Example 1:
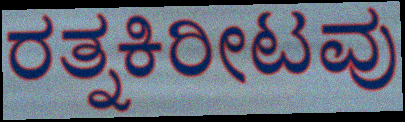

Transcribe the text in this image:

ರತ್ನಕಿರೀಟವು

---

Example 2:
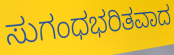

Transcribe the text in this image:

ಸುಗಂಧಭರಿತವಾದ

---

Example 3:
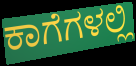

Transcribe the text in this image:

ಕಾಗೆಗಳಲ್ಲಿ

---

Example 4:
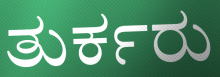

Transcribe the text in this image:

ತುರ್ಕರು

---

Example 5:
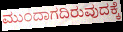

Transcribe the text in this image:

ಮುಂದಾಗದಿರುವುದಕ್ಕೆ